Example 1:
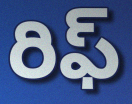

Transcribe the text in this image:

రిఫ్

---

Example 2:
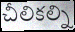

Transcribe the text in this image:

చీలికల్ని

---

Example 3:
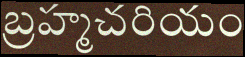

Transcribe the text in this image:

బ్రహ్మచరియం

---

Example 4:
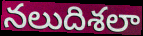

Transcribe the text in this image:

నలుదిశలా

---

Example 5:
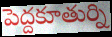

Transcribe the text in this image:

పెద్దకూతుర్ని